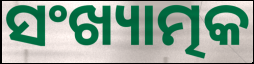
ସଂଖ୍ୟାତ୍ମକ